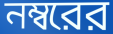
নম্বরের